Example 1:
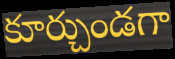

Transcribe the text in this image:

కూర్చుండగా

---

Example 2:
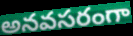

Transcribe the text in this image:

అనవసరంగా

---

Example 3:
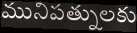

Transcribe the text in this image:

మునిపత్నులకు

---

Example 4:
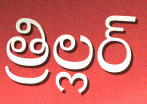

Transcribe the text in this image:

త్రిల్లర్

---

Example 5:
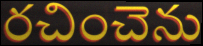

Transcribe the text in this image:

రచించెను